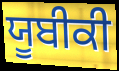
ਯੂਬੀਕੀ